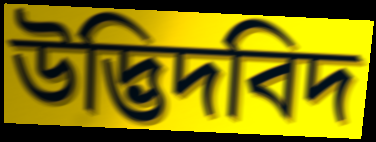
উদ্ভিদবিদ